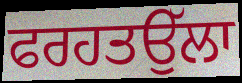
ਫਰਹਤਉੱਲਾ